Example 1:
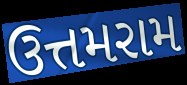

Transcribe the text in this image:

ઉત્તમરામ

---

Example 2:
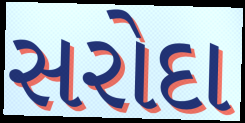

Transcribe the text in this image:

સરોદા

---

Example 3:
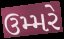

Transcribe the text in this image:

ઉમ્મરે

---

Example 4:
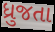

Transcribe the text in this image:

ધ્રુજતા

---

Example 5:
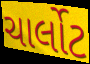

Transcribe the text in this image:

ચાર્લોટ